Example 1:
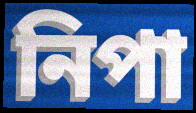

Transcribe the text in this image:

নিপা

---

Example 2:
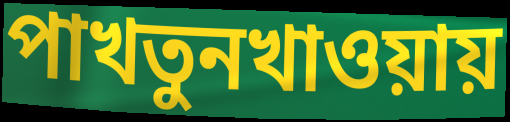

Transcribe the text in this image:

পাখতুনখাওয়ায়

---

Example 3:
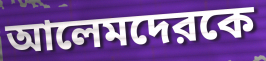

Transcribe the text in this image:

আলেমদেরকে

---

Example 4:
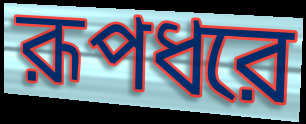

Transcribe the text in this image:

রূপধরে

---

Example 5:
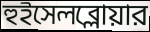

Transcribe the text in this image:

হুইসেলব্লোয়ার